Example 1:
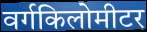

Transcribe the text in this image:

वर्गकिलोमीटर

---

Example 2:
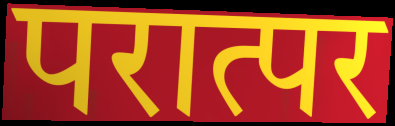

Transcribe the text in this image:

परात्‍पर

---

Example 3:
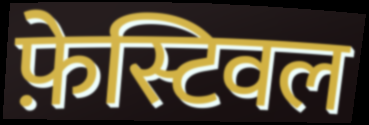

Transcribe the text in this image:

फ़ेस्टिवल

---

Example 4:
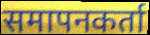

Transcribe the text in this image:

समापनकर्ता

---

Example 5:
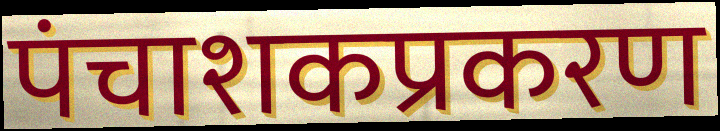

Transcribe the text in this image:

पंचाशकप्रकरण